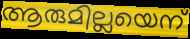
ആരുമില്ലയെന്